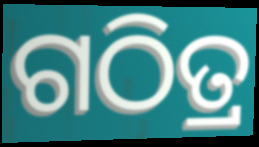
ଗଠିତ୍ର